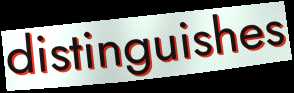
distinguishes